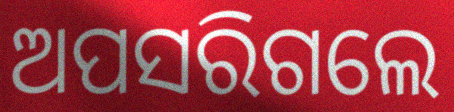
ଅପସରିଗଲେ